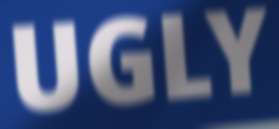
UGLY